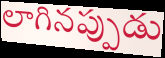
లాగినప్పుడు